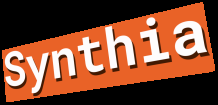
Synthia